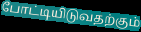
போட்டியிடுவதற்கும்